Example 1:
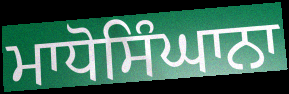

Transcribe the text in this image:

ਮਾਧੋਸਿੰਘਾਨਾ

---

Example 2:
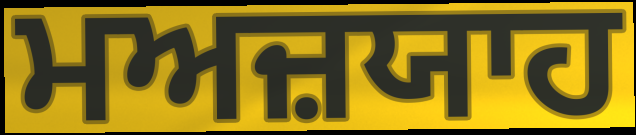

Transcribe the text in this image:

ਮਅਜ਼ਯਾਹ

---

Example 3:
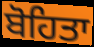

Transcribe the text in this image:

ਬੋਹਿਤਾ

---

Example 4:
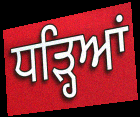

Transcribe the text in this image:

ਧੜ੍ਹਿਆਂ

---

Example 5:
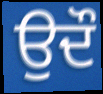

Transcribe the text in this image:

ਉਦੌ